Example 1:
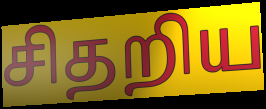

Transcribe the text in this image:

சிதறிய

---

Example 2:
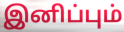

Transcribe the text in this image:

இனிப்பும்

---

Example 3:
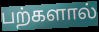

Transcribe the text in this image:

பற்களால்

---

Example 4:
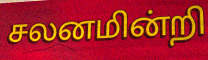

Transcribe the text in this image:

சலனமின்றி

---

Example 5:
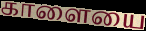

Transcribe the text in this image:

காளையை